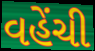
વહેંચી